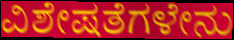
ವಿಶೇಷತೆಗಳೇನು